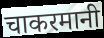
चाकरमानी